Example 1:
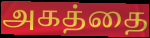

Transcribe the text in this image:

அகத்தை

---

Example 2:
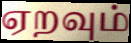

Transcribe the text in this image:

ஏறவும்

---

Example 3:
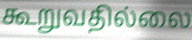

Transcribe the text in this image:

கூறுவதில்லை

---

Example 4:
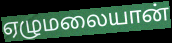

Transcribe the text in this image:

ஏழுமலையான்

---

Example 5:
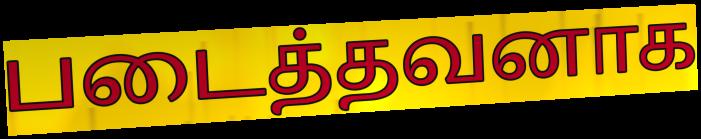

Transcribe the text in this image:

படைத்தவனாக